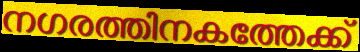
നഗരത്തിനകത്തേക്ക്